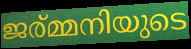
ജര്മ്മനിയുടെ